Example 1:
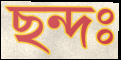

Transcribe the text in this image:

ছন্দঃ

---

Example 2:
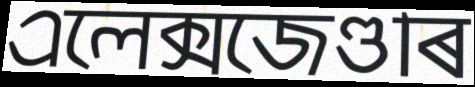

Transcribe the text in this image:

এলেক্সজেণ্ডাৰ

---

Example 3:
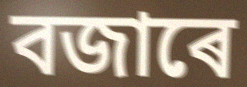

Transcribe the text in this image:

বজাৰে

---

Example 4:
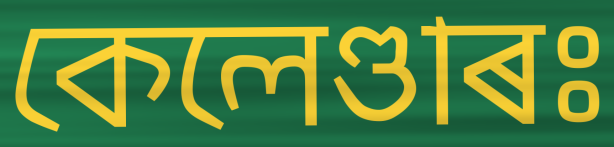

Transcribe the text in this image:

কেলেণ্ডাৰঃ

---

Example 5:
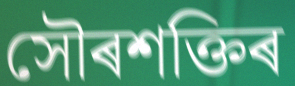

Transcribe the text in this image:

সৌৰশক্তিৰ